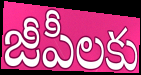
జీపీలకు